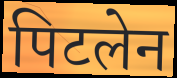
पिटलेन